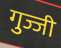
गुज्जी